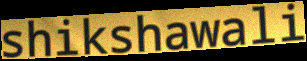
shikshawali